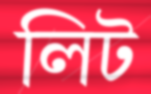
লিট